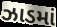
ઝાડમાં